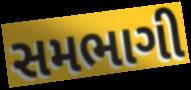
સમભાગી